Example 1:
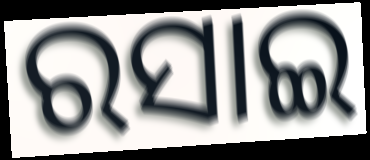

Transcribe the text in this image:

ରସାଇ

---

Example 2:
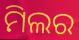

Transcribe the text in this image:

ମିଲର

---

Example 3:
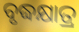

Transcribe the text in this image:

ବୃଦ୍ଧକ୍ଷାତ୍ର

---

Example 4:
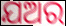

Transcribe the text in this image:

ଯଅର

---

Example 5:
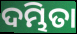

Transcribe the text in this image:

ଦମ୍ଭିତା